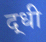
द्धी